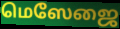
மெஸேஜை